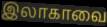
இலாகாவை